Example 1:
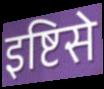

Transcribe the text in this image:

इष्टिसे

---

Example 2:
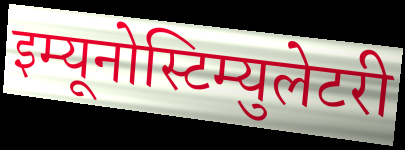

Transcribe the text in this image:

इम्यूनोस्टिम्युलेटरी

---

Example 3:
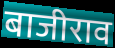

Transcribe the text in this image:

बाजीराव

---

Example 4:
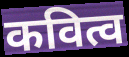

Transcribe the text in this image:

कवित्व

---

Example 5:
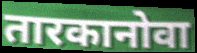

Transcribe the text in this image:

तारकानोवा